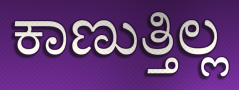
ಕಾಣುತ್ತಿಲ್ಲ